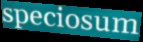
speciosum